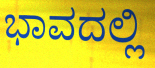
ಭಾವದಲ್ಲಿ